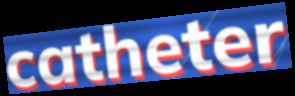
catheter